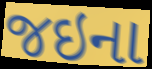
જઇના